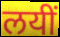
लयीं